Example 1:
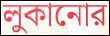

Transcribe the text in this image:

লুকানোর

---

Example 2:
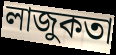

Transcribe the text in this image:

লাজুকতা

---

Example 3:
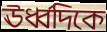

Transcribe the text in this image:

ঊর্ধ্বদিকে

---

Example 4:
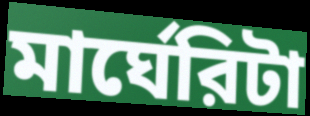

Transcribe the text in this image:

মার্ঘেরিটা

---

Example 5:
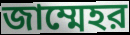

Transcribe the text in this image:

জাম্মেহর